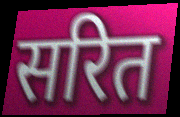
सरित